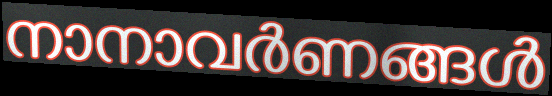
നാനാവർണങ്ങൾ